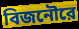
বিজনৌরে